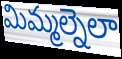
మిమ్మల్నెలా